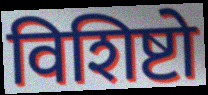
विशिष्टो